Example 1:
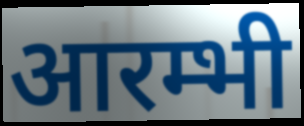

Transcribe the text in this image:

आरम्भी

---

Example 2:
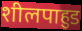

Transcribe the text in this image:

शीलपाहुड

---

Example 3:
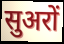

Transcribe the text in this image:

सुअरों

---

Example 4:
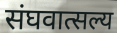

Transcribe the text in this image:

संघवात्सल्य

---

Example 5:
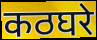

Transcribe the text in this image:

कठघरे